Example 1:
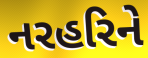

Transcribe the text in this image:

નરહરિને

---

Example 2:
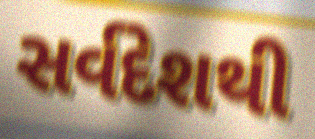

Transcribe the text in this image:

સર્વદેશથી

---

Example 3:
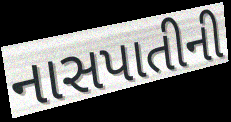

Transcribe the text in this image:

નાસપાતીની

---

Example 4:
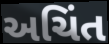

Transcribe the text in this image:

અચિંત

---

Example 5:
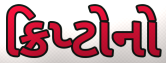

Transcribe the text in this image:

ક્રિપ્ટોનો